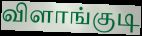
விளாங்குடி